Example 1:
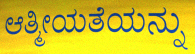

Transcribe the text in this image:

ಆತ್ಮೀಯತೆಯನ್ನು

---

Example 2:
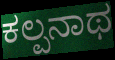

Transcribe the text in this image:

ಕಲ್ಪನಾಥ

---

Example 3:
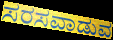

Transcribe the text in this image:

ಸರಸವಾಡುವ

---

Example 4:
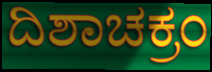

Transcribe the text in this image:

ದಿಶಾಚಕ್ರಂ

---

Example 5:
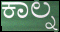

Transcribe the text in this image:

ಕಾಲ್ನ